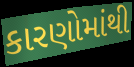
કારણોમાંથી